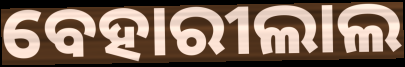
ବେହାରୀଲାଲ